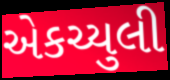
એકચ્યુલી